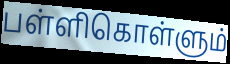
பள்ளிகொள்ளும்